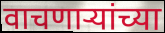
वाचणार्‍यांच्या